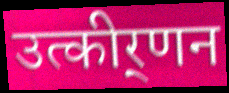
उत्कीर्णन